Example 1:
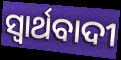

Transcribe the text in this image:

ସ୍ୱାର୍ଥବାଦୀ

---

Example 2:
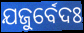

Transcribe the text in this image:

ଯଜୁର୍ବେଦଃ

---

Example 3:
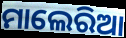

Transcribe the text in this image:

ମାଲେରିଆ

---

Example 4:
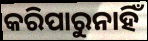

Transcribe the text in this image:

କରିପାରୁନାହିଁ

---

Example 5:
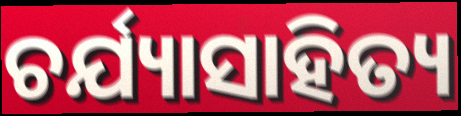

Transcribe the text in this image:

ଚର୍ଯ୍ୟାସାହିତ୍ୟ